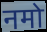
नमो